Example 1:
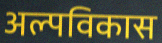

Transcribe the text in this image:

अल्पविकास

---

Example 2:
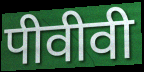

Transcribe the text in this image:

पीवीवी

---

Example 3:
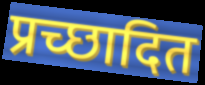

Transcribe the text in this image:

प्रच्छादित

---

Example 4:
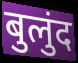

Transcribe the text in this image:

बुलुंद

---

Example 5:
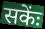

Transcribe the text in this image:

सकेंः